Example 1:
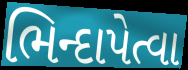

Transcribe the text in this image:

ભિન્દાપેત્વા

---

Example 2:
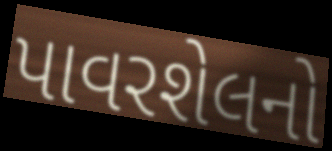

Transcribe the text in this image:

પાવરશેલનો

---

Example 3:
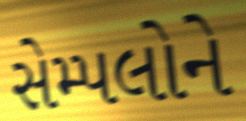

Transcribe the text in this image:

સેમ્પલોને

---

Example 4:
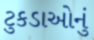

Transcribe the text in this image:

ટુકડાઓનું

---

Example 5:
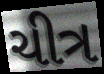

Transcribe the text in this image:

ચીત્ર